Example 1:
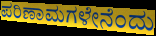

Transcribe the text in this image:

ಪರಿಣಾಮಗಳೇನೆಂದು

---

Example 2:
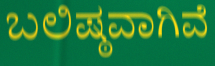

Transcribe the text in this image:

ಬಲಿಷ್ಠವಾಗಿವೆ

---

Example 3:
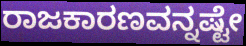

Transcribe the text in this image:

ರಾಜಕಾರಣವನ್ನಷ್ಟೇ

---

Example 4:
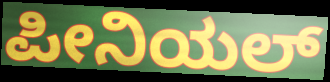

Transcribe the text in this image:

ಪೀನಿಯಲ್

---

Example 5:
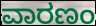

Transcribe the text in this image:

ವಾರಣಂ